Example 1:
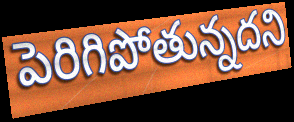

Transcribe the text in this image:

పెరిగిపోతున్నదని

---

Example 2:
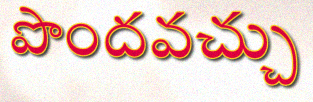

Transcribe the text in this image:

పొందవచ్చు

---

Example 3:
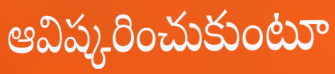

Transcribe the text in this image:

ఆవిష్కరించుకుంటూ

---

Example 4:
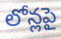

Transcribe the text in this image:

లోన్లపై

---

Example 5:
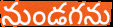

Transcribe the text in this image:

నుండగను